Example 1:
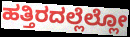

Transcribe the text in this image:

ಹತ್ತಿರದಲ್ಲೆಲ್ಲೋ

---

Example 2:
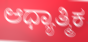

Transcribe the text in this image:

ಆಧ್ಯಾತ್ಮಿಕ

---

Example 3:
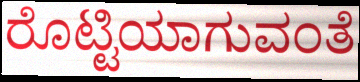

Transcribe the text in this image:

ರೊಟ್ಟಿಯಾಗುವಂತೆ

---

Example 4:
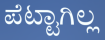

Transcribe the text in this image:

ಪೆಟ್ಟಾಗಿಲ್ಲ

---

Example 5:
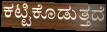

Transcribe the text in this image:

ಕಟ್ಟಿಕೊಡುತ್ತದೆ